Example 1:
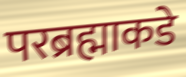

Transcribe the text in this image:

परब्रह्माकडे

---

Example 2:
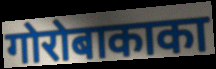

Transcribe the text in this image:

गोरोबाकाका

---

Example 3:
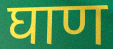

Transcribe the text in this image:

घाण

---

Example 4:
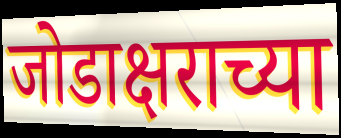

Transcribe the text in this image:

जोडाक्षराच्या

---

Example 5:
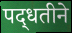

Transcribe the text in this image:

पद्‍धतीने